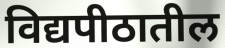
विद्यपीठातील